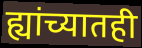
ह्यांच्यातही